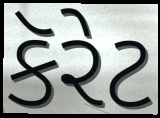
કૅરેટ